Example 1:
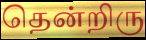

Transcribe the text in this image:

தென்றிரு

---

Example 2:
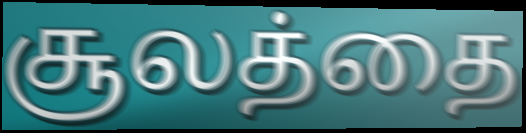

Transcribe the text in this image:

சூலத்தை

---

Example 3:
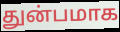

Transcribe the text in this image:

துன்பமாக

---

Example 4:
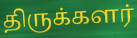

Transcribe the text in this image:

திருக்களர்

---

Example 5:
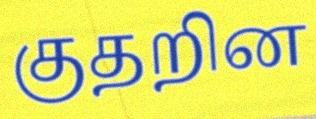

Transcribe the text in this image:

குதறின